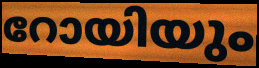
റോയിയും